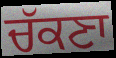
ਚੱਕਣਾ